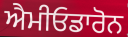
ਐਮੀਓਡਾਰੋਨ